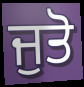
ਜੁਤੋ